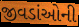
જીવડાંઓની